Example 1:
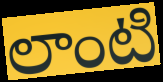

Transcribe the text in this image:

లాంటి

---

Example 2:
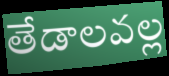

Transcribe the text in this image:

తేడాలవల్ల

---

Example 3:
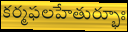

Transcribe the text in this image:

కర్మఫలహేతుర్భూః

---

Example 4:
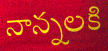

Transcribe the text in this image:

నాన్నలకి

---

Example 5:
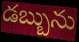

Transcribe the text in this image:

డబ్బును